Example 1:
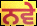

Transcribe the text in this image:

ਨਵੇ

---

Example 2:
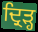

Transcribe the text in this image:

ਦ੍ਰਿੜ੍ਹ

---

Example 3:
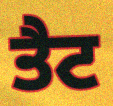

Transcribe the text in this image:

ਤੈਟ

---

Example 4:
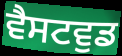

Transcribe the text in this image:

ਵੈਸਟਵੁਡ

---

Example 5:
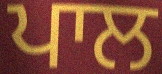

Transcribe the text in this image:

ਪਾਲ